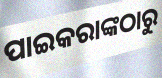
ପାଇକରାଙ୍କଠାରୁ